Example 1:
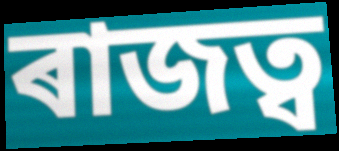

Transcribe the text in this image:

ৰাজত্ব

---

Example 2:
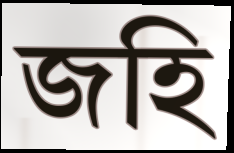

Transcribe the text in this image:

জহি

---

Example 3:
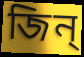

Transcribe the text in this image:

জিন্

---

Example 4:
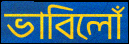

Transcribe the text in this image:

ভাবিলোঁ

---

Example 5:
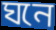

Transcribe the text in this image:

ঘনে